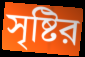
সৃষ্টির